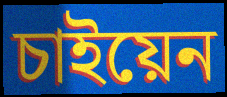
চাইয়েন